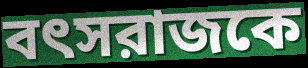
বৎসরাজকে